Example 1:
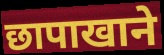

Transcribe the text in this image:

छापाखाने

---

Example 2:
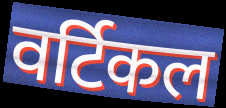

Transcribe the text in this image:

वर्टिकल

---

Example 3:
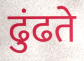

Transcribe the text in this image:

ढुंढते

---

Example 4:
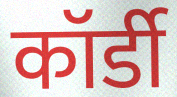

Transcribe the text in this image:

कॉर्डी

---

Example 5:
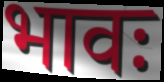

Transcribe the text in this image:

भावः